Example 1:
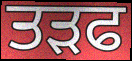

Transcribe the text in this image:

ਤੜਫ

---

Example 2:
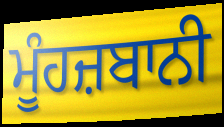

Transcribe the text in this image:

ਮੂੰਹਜ਼ਬਾਨੀ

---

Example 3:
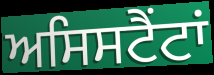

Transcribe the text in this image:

ਅਸਿਸਟੈਂਟਾਂ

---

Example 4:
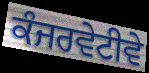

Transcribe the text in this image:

ਕੰਜਰਵੇਟੀਵੇ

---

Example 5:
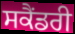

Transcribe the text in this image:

ਸਕੈਂਡਰੀ